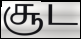
சூட